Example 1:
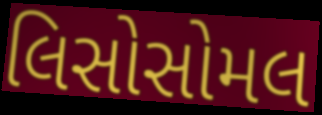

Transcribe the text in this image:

લિસોસોમલ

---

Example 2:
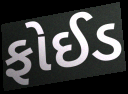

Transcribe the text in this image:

ફોઈડ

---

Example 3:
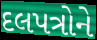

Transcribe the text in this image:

દલપત્રોને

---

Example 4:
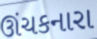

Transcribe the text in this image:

ઊંચકનારા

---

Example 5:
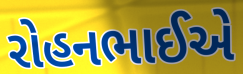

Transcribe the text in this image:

રોહનભાઈએ